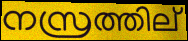
നസ്രത്തില്